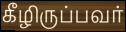
கீழிருப்பவர்